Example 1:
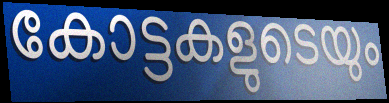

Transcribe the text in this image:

കോട്ടകളുടെയും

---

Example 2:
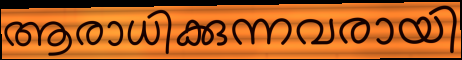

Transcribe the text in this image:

ആരാധിക്കുന്നവരായി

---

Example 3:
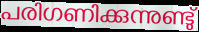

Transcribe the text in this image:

പരിഗണിക്കുന്നുണ്ടു്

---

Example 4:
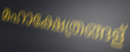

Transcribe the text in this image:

മഹാക്ഷേത്രങ്ങള്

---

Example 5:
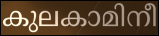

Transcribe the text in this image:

കുലകാമിനീ